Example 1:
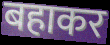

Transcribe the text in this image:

बहाकर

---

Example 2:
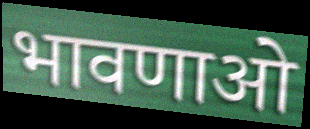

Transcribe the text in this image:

भावणाओ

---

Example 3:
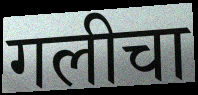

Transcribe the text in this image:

गलीचा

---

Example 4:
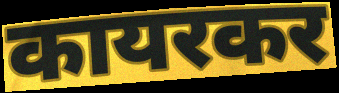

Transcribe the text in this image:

कायरकर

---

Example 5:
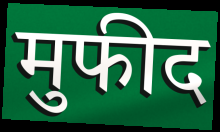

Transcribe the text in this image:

मुफीद